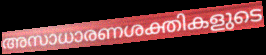
അസാധാരണശക്തികളുടെ